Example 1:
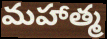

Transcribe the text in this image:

మహాత్మ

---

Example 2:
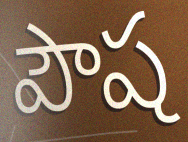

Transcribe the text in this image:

పౌష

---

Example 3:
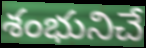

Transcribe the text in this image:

శంభునిచే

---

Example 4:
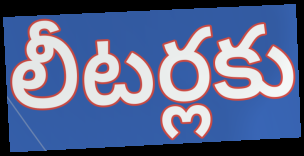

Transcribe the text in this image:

లీటర్లకు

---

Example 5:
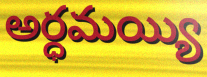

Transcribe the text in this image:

అర్ధమయ్యి